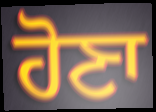
ਹੋਣਾ